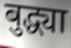
बुद्ध्या